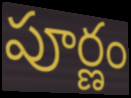
పూర్ణం